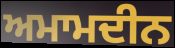
ਅਮਾਮਦੀਨ